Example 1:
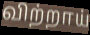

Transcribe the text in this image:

விற்றாய்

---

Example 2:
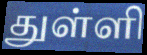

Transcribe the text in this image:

துள்ளி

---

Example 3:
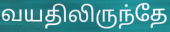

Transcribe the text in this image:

வயதிலிருந்தே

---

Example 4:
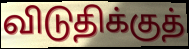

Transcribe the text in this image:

விடுதிக்குத்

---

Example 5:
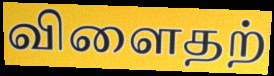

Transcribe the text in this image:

விளைதற்